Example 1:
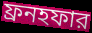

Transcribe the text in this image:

ফ্রনহফার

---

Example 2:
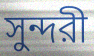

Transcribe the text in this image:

সুন্দরী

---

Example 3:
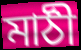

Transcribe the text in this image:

মাঠী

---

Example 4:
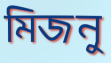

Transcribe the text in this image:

মিজনু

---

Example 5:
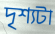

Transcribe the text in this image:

দৃশ্যটা